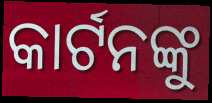
କାର୍ଟନଙ୍କୁ